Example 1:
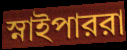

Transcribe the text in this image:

স্নাইপাররা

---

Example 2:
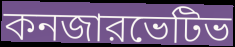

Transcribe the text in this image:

কনজারভেটিভ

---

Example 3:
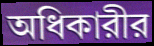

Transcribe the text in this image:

অধিকারীর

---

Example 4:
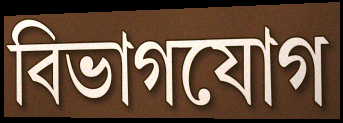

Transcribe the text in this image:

বিভাগযোগ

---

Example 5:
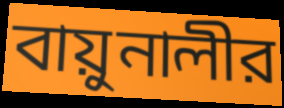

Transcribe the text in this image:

বায়ুনালীর